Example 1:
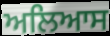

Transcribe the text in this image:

ਅਲਿਆਸ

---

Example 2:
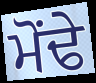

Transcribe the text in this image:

ਮੋਂਢੇ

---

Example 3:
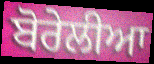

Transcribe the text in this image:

ਬੋਰੇਲੀਆ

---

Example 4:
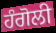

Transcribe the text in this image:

ਹੰਗੋਲੀ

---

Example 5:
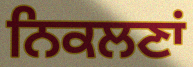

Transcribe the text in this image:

ਨਿਕਲਣਾਂ